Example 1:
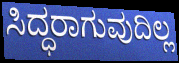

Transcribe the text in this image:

ಸಿದ್ಧರಾಗುವುದಿಲ್ಲ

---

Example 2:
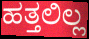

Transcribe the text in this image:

ಹತ್ತಲಿಲ್ಲ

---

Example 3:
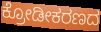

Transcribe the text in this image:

ಕ್ರೋಡೀಕರಣದ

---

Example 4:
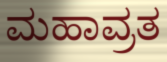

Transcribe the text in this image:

ಮಹಾವ್ರತ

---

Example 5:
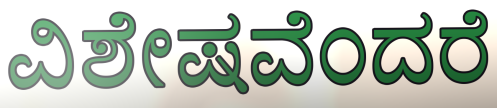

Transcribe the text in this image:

ವಿಶೇಷವೆಂದರೆ